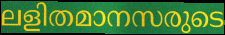
ലളിതമാനസരുടെ